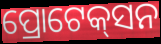
ପ୍ରୋଟେକ୍‌ସନ